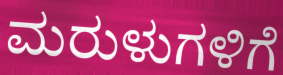
ಮರುಳುಗಳಿಗೆ